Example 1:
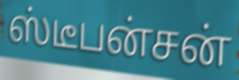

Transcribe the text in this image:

ஸ்டீபன்சன்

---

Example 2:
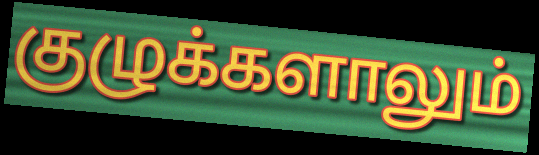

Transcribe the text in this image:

குழுக்களாலும்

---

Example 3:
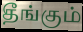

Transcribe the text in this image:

தீங்கும்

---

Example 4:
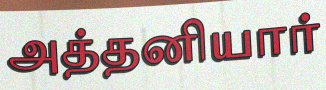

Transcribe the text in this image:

அத்தனியார்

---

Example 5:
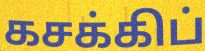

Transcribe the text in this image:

கசக்கிப்